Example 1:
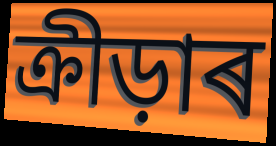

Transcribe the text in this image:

ক্ৰীড়াৰ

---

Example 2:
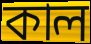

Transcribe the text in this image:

কাল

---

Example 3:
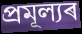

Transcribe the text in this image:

প্ৰমূল্যৰ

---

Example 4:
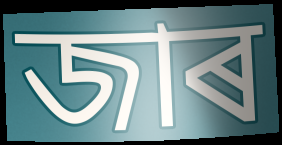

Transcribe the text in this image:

জাৰ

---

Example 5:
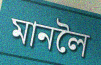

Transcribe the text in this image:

মানলৈ